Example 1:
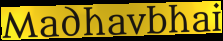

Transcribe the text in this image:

Madhavbhai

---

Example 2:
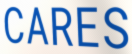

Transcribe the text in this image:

CARES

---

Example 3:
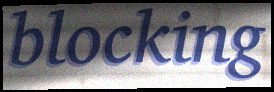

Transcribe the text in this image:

blocking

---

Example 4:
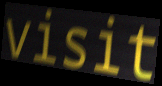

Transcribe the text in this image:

visit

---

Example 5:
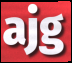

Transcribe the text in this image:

ajg